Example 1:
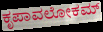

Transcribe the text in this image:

ಕೃಪಾವಲೋಕಮ್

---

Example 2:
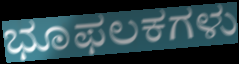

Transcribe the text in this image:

ಭೂಫಲಕಗಳು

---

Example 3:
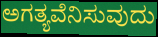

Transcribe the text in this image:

ಅಗತ್ಯವೆನಿಸುವುದು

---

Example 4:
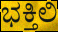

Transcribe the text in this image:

ಭಕ್ತಿಲಿ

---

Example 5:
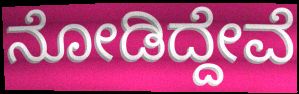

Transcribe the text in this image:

ನೋಡಿದ್ದೇವೆ